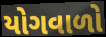
યોગવાળો